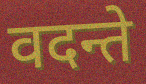
वदन्ते